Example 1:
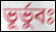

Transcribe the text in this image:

ভূর্ভুবঃ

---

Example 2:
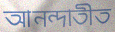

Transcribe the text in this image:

আনন্দাতীত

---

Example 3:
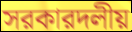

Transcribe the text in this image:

সরকারদলীয়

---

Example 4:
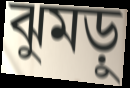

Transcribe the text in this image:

ঝুমড়ু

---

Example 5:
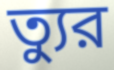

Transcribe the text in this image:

ত্যুর